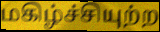
மகிழ்ச்சியுற்ற